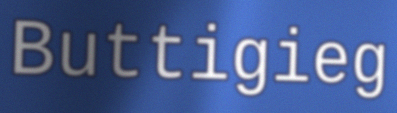
Buttigieg